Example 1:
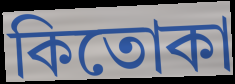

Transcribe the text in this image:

কিতোকা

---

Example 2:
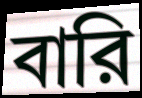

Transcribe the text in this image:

বারি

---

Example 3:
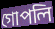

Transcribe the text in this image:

গোপলি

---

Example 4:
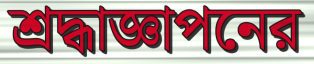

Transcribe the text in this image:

শ্রদ্ধাজ্ঞাপনের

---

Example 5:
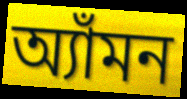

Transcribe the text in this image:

অ্যাঁমন